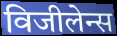
विजीलेन्स